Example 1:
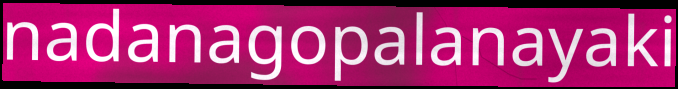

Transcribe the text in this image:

nadanagopalanayaki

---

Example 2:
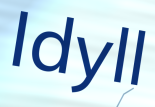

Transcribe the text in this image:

Idyll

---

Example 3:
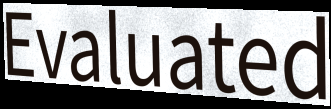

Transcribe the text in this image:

Evaluated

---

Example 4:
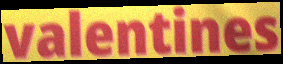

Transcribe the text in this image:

valentines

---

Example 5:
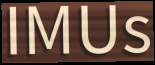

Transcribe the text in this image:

IMUs